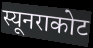
स्यूनराकोट